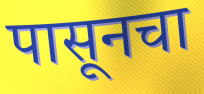
पासूनचा